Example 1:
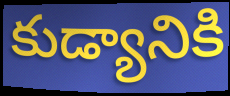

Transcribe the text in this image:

కుడ్యానికి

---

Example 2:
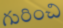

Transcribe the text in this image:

గురించి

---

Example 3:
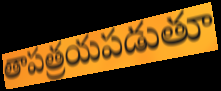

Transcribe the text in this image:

తాపత్రయపడుతూ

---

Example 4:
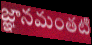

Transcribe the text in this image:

జ్ఞానమంతటి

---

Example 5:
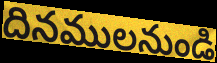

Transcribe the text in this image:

దినములనుండి